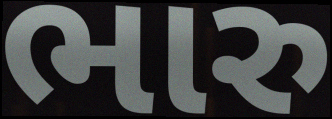
ભારુ